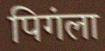
पिगंला